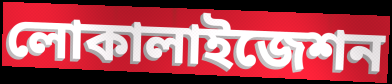
লোকালাইজেশন